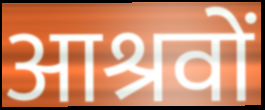
आश्रवों